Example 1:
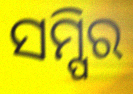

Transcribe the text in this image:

ସମ୍ପିର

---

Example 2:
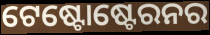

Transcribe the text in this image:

ଟେଷ୍ଟୋଷ୍ଟେରନର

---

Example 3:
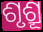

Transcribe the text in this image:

ଶୃଶ୍ରୂ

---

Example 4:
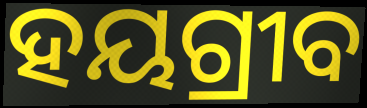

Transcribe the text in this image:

ହୟଗ୍ରୀବ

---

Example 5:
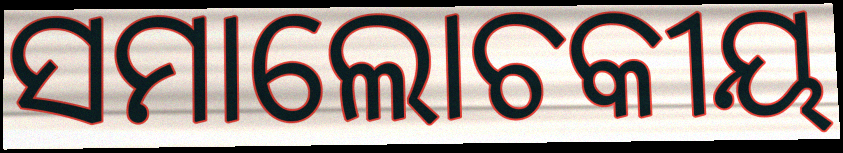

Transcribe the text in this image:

ସମାଲୋଚକୀୟ